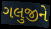
ગલુજીને